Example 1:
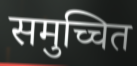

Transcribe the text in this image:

समुच्चित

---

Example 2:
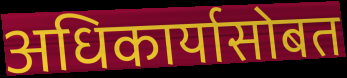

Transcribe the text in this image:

अधिकार्यासोबत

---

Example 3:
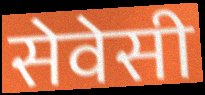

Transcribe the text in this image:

सेवेसी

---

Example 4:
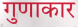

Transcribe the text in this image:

गुणाकार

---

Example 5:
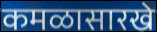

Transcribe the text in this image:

कमळासारखे